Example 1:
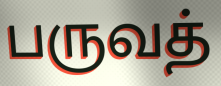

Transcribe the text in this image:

பருவத்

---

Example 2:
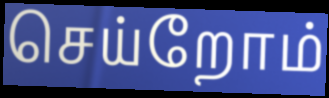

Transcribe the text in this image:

செய்றோம்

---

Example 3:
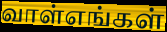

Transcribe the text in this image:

வாள்எங்கள்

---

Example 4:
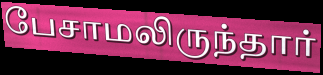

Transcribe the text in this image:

பேசாமலிருந்தார்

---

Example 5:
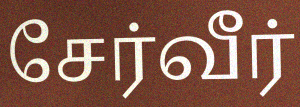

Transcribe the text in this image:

சேர்வீர்